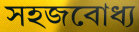
সহজবোধ্য